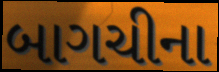
બાગચીના